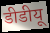
डीडीयू